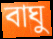
বাঘু